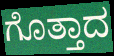
ಗೊತ್ತಾದ